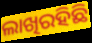
ଲାଖିରହିଛି